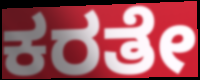
ಕರತೇ